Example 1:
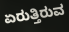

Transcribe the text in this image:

ಏರುತ್ತಿರುವ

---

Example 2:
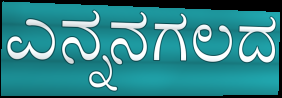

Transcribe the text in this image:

ಎನ್ನನಗಲದ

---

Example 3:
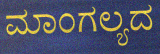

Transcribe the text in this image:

ಮಾಂಗಲ್ಯದ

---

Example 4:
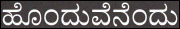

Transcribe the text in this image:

ಹೊಂದುವೆನೆಂದು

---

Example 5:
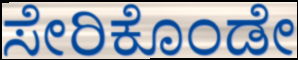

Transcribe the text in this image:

ಸೇರಿಕೊಂಡೇ